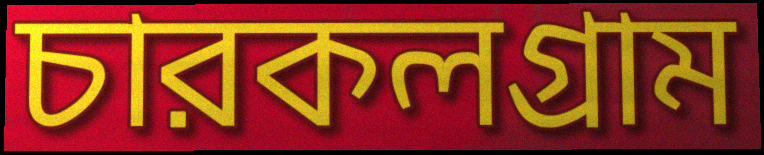
চারকলগ্রাম